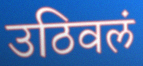
उठिवलं